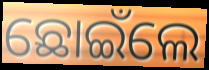
ଛୋଇଁଲେ